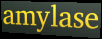
amylase